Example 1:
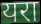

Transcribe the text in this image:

यरा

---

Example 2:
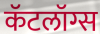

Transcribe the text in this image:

कॅटलॉग्स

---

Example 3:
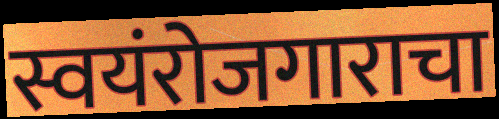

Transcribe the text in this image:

स्वयंरोजगाराचा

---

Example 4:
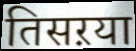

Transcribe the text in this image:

तिसऱया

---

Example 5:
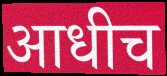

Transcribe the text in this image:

आधीच